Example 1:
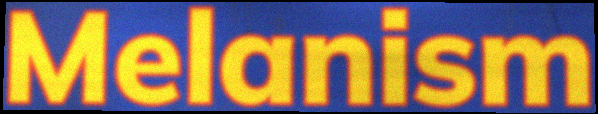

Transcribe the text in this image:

Melanism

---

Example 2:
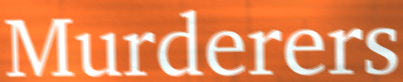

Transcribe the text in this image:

Murderers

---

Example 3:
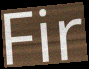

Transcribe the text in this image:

Fir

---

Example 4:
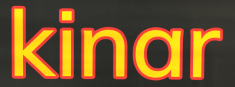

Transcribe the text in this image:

kinar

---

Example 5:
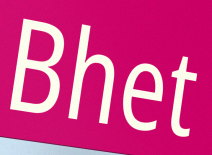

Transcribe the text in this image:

Bhet